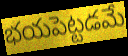
భయపెట్టడమే